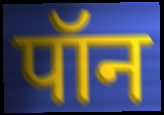
पॉन